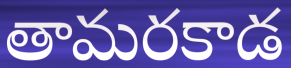
తామరకాడ